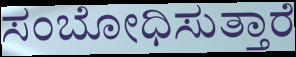
ಸಂಬೋಧಿಸುತ್ತಾರೆ